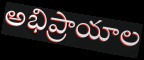
అభిప్రాయాల